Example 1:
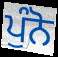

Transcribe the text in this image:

ਪੁੰਨੋ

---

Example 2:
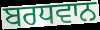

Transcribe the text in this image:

ਬਰਧਵਾਨ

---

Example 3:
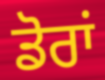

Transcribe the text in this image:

ਡੋਰਾਂ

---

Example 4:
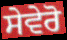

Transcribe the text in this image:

ਸੇਵੇਰੋ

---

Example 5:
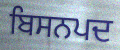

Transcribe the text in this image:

ਬਿਸਨਪਦ